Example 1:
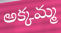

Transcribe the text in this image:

అక్కమ్మ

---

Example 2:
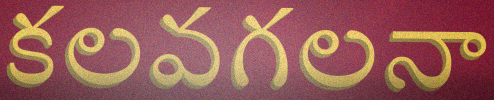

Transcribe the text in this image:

కలవగలనా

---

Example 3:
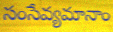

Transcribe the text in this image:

సంసేవ్యమానాం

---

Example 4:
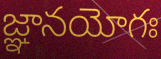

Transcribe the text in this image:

జ్ఞానయోగః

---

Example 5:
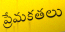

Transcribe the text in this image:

ప్రేమకతలు